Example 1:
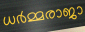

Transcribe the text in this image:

ധർമ്മരാജാ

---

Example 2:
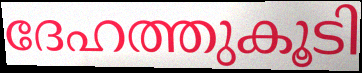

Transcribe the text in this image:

ദേഹത്തുകൂടി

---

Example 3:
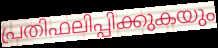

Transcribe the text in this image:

പ്രതിഫലിപ്പിക്കുകയും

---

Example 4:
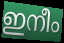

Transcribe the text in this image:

ഇനീം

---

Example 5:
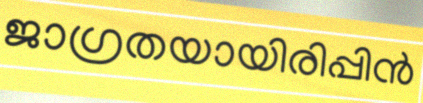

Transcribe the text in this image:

ജാഗ്രതയായിരിപ്പിൻ